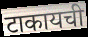
टाकायची